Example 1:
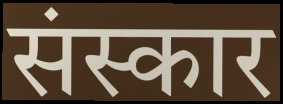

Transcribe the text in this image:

संस्‍कार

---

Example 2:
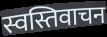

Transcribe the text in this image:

स्वस्तिवाचन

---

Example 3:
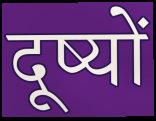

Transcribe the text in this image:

दूष्यों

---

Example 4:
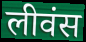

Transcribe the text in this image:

लीवंस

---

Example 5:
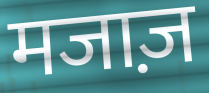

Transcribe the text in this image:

मजाज़